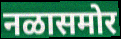
नळासमोर